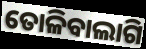
ତୋଳିବାଲାଗି